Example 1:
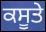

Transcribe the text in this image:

ਕਸੂਤੇ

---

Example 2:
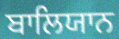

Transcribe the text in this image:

ਬਾਲਿਯਾਨ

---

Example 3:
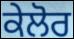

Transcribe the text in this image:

ਕੇਲੋਰ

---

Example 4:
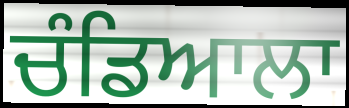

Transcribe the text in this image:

ਚੰਡਿਆਲਾ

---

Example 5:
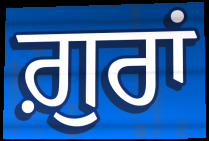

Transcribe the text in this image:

ਗ਼ੁਰਾਂ